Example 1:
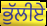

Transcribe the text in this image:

ਭੁੱਲੀਏ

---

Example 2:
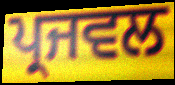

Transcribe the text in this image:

ਪ੍ਰਜਵਲ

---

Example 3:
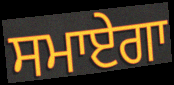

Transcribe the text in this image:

ਸਮਾਏਗਾ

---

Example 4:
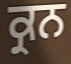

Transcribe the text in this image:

ਕ੍ਰਨ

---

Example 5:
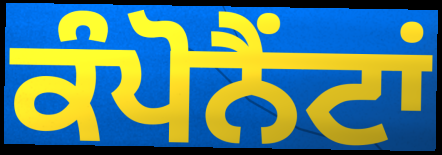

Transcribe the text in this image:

ਕੰਪੋਨੈਂਟਾਂ